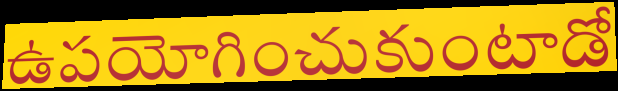
ఉపయోగించుకుంటాడో